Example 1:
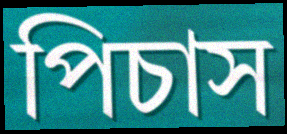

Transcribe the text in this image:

পিচাস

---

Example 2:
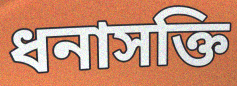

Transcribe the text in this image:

ধনাসক্তি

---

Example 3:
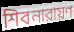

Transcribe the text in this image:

শিবনারায়ণ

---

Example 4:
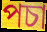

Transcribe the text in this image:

পচা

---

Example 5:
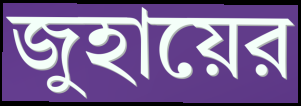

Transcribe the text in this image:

জুহায়ের